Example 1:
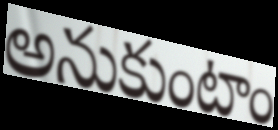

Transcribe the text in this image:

అనుకుంటాం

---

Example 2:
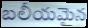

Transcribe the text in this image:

బలీయమైన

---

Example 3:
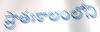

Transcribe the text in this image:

ప్రాతఃకాలంలోని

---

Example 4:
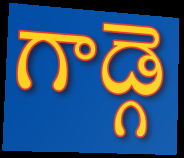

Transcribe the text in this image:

గాడ్గె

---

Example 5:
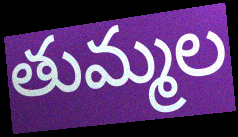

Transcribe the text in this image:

తుమ్మల